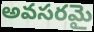
అవసరమై